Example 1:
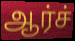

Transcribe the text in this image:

ஆர்ச்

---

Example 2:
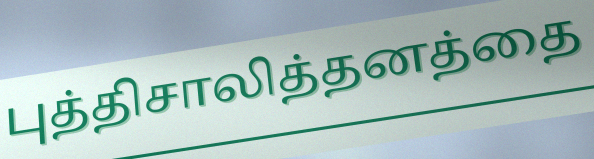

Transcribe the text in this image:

புத்திசாலித்தனத்தை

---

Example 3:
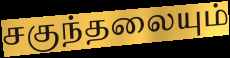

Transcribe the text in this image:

சகுந்தலையும்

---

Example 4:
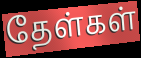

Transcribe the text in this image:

தேள்கள்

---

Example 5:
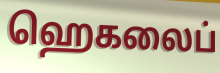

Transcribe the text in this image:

ஹெகலைப்